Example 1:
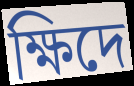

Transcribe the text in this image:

ক্ষিদে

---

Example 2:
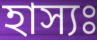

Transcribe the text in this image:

হাস্যঃ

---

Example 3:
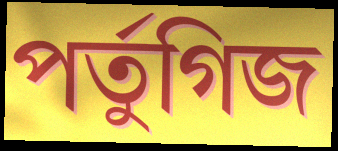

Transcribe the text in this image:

পর্তুগিজ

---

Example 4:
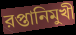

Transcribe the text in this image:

রপ্তানিমুখী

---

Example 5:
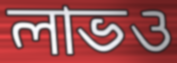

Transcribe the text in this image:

লাভও